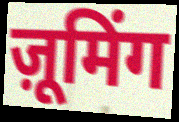
ज़ूमिंग